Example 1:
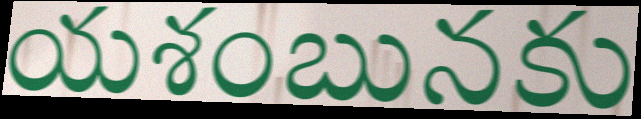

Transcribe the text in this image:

యశంబునకు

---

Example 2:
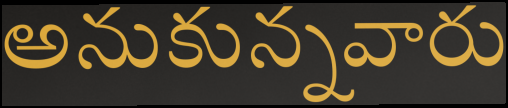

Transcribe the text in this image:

అనుకున్నవారు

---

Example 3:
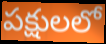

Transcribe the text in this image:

పక్షులలో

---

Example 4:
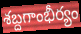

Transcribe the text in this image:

శబ్దగాంభీర్యం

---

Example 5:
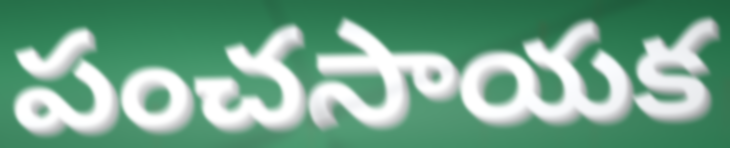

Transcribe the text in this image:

పంచసాయక